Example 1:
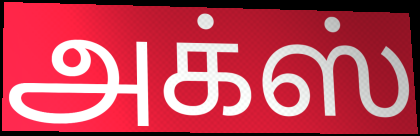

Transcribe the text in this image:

அக்ஸ்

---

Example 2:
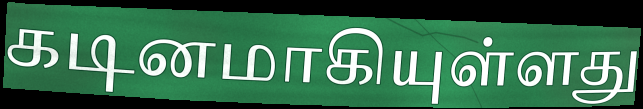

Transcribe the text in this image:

கடினமாகியுள்ளது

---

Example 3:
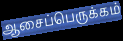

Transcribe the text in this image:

ஆசைப்பெருக்கம்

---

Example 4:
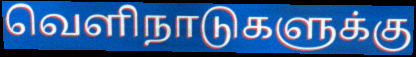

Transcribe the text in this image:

வெளிநாடுகளுக்கு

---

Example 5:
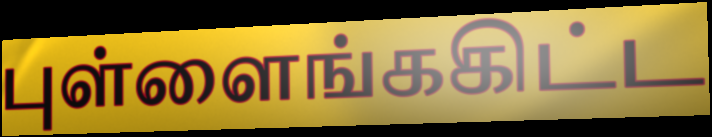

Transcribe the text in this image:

புள்ளைங்ககிட்ட